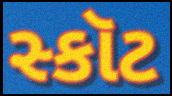
સ્કૉટ